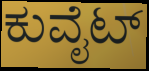
ಕುವೈಟ್